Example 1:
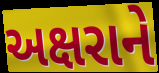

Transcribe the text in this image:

અક્ષરાને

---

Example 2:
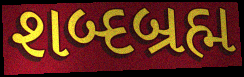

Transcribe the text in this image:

શબ્દબ્રહ્મ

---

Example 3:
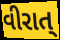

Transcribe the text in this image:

વીરાત્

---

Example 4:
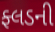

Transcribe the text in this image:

ફ્લડની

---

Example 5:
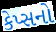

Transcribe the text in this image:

કેપ્સનો